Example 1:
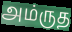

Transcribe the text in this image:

அம்ருத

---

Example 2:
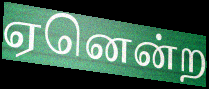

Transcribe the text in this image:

ஏனென்ற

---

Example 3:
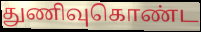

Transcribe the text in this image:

துணிவுகொண்ட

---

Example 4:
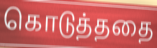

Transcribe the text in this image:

கொடுத்ததை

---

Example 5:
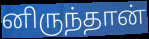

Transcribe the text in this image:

னிருந்தான்